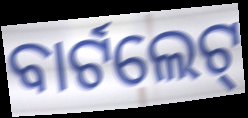
ବାର୍ଟଲେଟ୍